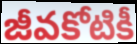
జీవకోటికీ